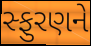
સ્ફુરણને